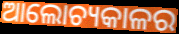
ଆଲୋଚ୍ୟକାଳର